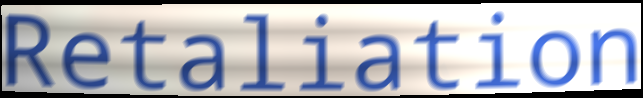
Retaliation